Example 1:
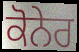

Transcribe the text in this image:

ਕੋਨੇਰ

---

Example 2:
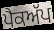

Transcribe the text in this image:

ਪੈਕਅੱਪ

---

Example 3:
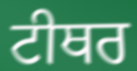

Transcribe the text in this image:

ਟੀਥਰ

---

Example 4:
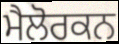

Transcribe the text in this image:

ਮੈਲੋਰਕਨ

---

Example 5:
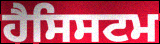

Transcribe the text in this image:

ਹੈਸਿਸਟਮ